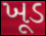
ખૂડ